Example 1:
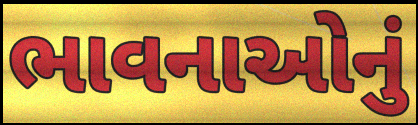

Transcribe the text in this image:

ભાવનાઓનું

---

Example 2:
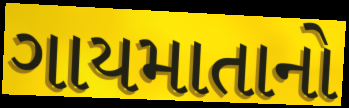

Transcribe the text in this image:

ગાયમાતાનો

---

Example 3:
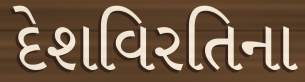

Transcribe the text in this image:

દેશવિરતિના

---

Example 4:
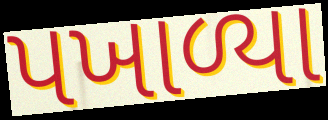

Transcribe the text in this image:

પખાળ્યા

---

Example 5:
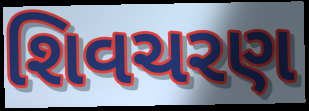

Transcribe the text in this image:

શિવચરણ